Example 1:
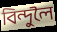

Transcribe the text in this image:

বিন্দুলৈ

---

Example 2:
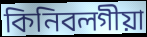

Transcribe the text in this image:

কিনিবলগীয়া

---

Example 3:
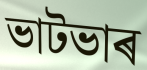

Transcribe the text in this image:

ভাটভাৰ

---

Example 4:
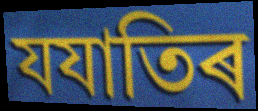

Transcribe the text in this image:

যযাতিৰ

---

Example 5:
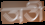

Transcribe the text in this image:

অতী